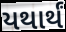
યથાર્થં